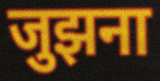
जुझना